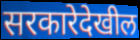
सरकारेदेखील